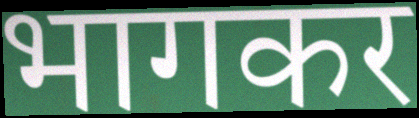
भागकर